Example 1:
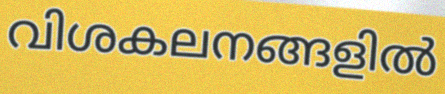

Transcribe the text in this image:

വിശകലനങ്ങളിൽ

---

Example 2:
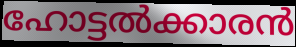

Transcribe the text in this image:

ഹോട്ടൽക്കാരൻ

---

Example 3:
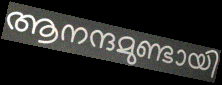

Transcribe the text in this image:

ആനന്ദമുണ്ടായി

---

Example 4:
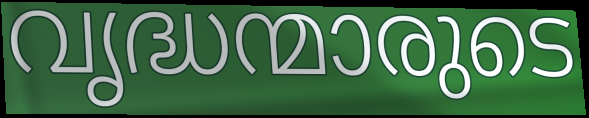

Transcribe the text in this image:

വൃദ്ധന്മാരുടെ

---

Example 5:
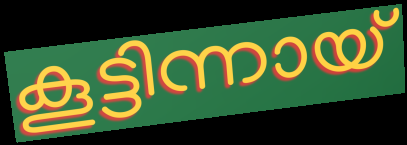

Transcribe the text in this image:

കൂട്ടിന്നായ്